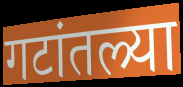
गटांतल्या